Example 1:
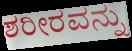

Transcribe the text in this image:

ಶರೀರವನ್ನು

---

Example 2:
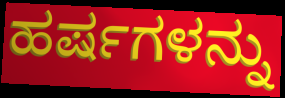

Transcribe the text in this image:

ಹರ್ಷಗಳನ್ನು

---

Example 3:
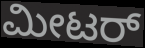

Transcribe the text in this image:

ಮೀಟರ್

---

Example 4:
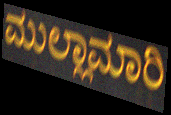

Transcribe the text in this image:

ಮುಲ್ಲಾಮಾರಿ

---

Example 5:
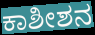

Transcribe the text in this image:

ಕಾಶೀಶನ